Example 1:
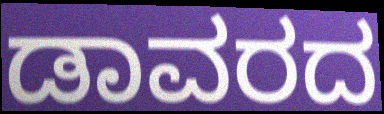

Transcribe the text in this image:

ಡಾವರದ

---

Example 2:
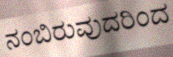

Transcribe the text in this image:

ನಂಬಿರುವುದರಿಂದ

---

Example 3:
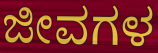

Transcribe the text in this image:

ಜೀವಗಳ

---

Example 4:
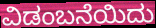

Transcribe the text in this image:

ವಿಡಂಬನೆಯಿದು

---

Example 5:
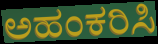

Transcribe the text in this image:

ಅಹಂಕರಿಸಿ